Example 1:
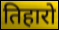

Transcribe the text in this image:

तिहारो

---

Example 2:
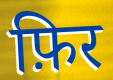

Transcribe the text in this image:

फ़िर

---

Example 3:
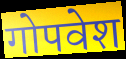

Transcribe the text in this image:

गोपवेश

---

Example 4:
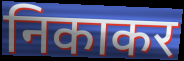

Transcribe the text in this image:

निकाकर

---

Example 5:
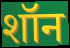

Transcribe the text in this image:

शॉन